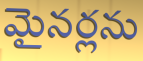
మైనర్లను